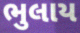
ભુલાય